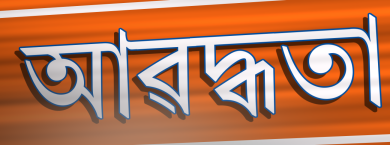
আৱদ্ধতা